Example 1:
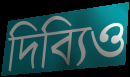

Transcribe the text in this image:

দিব্যিও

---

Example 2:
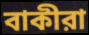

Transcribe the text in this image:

বাকীরা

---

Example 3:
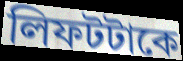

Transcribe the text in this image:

লিফটটাকে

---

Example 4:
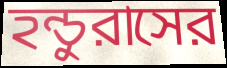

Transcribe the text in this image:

হন্ডুরাসের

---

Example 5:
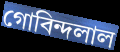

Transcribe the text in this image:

গোবিন্দলাল